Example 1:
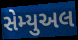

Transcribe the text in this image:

સેમ્યુઅલ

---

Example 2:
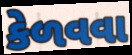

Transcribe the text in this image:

કેળવવા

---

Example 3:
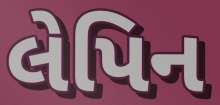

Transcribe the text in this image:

લેપિન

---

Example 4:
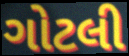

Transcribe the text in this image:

ગોટલી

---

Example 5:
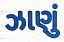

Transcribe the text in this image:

ઝાણું